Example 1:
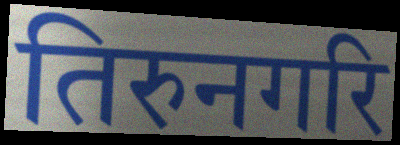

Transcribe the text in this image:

तिरुनगरि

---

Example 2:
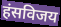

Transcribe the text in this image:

हंसविजय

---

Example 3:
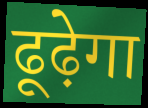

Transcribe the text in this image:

ढूढ़ेगा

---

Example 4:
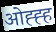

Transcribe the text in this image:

ओह्ह्ह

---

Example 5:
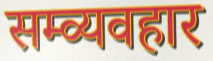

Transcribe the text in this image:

सम्व्यवहार